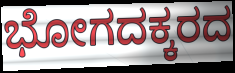
ಭೋಗದಕ್ಕರದ